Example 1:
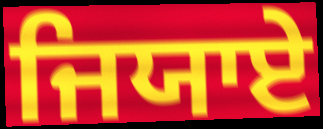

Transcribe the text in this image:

ਜਿਯਾਏ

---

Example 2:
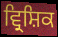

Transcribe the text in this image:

ਵ੍ਰਿਸ਼ਿਕ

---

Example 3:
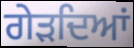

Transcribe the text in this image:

ਗੇੜਦਿਆਂ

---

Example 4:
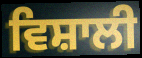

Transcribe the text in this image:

ਵਿਸ਼ਾਲੀ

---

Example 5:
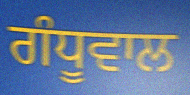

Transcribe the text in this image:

ਗੰਧੂਵਾਲ